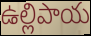
ఉల్లిపాయ